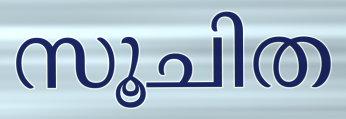
സൂചിത